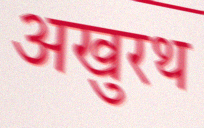
अखुरथ